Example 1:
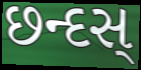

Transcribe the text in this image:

છન્દસ્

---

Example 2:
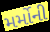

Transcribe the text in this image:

મર્મોની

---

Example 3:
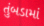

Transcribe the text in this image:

તુંબડામાં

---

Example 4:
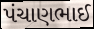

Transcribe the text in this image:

પંચાણભાઈ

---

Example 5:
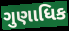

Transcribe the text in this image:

ગુણાધિક